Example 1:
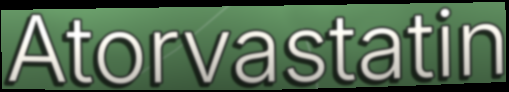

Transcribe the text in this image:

Atorvastatin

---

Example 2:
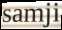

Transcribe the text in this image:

samji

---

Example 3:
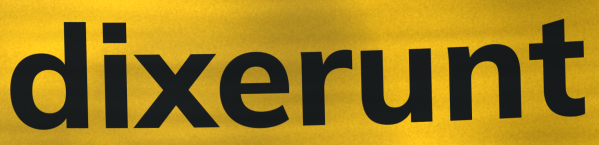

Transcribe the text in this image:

dixerunt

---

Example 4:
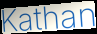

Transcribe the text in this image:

Kathan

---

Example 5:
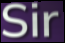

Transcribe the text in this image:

Sir